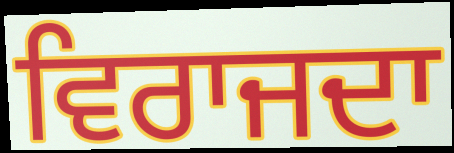
ਵਿਰਾਜਦਾ